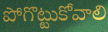
పోగొట్టుకోవాలి